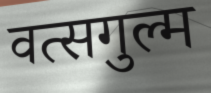
वत्सगुल्म